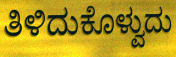
ತಿಳಿದುಕೊಳ್ವುದು